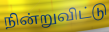
நின்றுவிட்டு